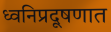
ध्वनिप्रदूषणात